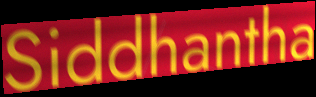
Siddhantha